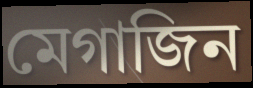
মেগাজিন